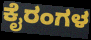
ಕೈರಂಗಳ